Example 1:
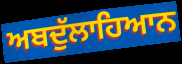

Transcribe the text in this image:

ਅਬਦੁੱਲਾਹਿਆਨ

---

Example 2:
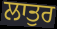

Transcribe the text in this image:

ਲਾਤੁਰ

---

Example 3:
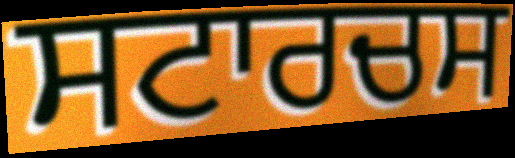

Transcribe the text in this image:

ਸਟਾਰਚਸ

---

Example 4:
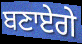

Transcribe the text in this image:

ਬਣਾਏਗੇ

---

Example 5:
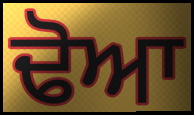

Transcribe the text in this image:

ਢੋਆ